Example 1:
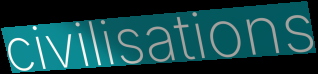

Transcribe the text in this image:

civilisations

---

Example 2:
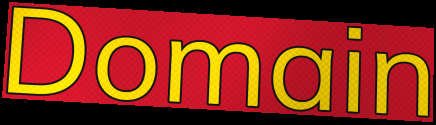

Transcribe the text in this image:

Domain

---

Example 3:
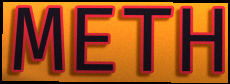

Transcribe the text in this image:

METH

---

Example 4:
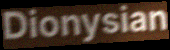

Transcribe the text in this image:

Dionysian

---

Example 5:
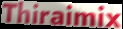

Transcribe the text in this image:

Thiraimix